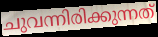
ചുവന്നിരിക്കുന്നത്